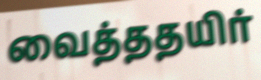
வைத்ததயிர்